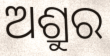
ଅଶ୍ରୁର